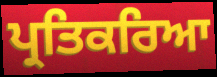
ਪ੍ਰਤਿਕਰਿਆ